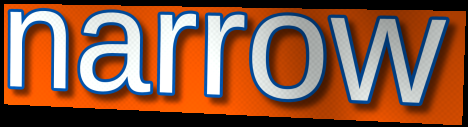
narrow